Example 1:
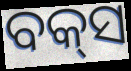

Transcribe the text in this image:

ବକ୍‍ସ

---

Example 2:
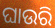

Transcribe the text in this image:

ଘାଉରି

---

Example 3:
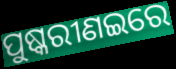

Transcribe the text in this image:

ପୁଷ୍କରୀଣଇରେ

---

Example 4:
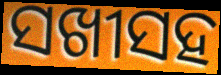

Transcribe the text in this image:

ସଖୀସହ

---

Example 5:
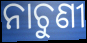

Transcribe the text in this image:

ନାଚୁଣୀ